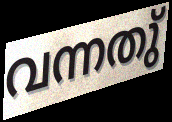
വന്നതു്